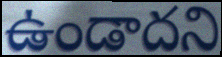
ఉండాదని